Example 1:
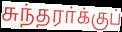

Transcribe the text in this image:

சுந்தரர்க்குப்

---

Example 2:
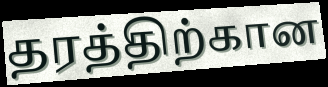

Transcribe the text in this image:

தரத்திற்கான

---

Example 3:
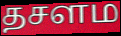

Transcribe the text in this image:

தசளம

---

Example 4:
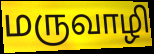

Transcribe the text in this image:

மருவாழி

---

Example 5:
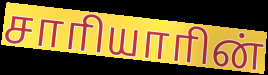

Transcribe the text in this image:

சாரியாரின்